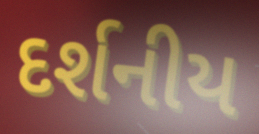
દર્શનીય